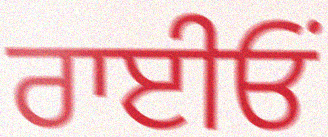
ਰਾਈਓਂ